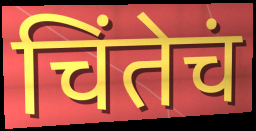
चिंतेचं